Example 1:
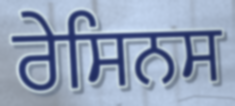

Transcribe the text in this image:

ਰੇਸਿਨਸ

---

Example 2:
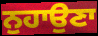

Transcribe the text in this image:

ਨੁਹਾਉਣਾ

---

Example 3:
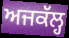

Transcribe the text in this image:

ਅਜਕੱਲ੍ਹ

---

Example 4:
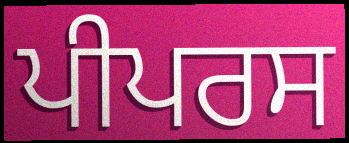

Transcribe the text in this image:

ਪੀਪਰਸ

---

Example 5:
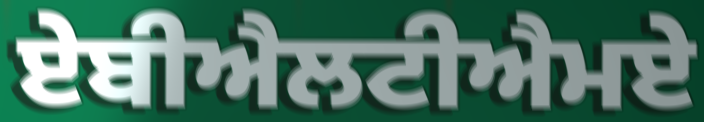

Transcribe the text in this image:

ਏਬੀਐਲਟੀਐਮਏ